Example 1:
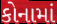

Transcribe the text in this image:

કોનામાં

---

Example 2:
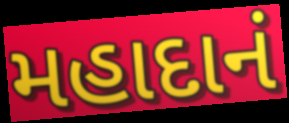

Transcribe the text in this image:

મહાદાનં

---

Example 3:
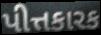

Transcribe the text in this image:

પીત્તકારક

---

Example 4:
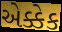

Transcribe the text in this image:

એક્કેક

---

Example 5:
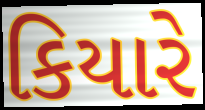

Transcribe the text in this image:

કિયારે